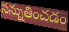
సన్నుతించడం